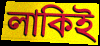
লাকিই